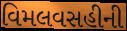
વિમલવસહીની